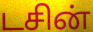
டசின்